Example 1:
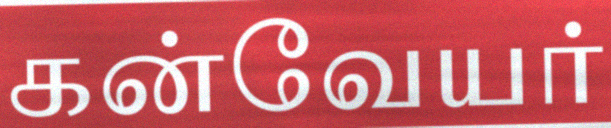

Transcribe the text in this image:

கன்வேயர்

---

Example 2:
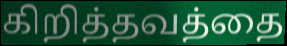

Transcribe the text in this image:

கிறித்தவத்தை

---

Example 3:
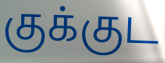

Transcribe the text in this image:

குக்குட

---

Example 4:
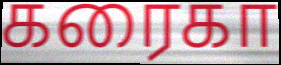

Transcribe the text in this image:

கரைகா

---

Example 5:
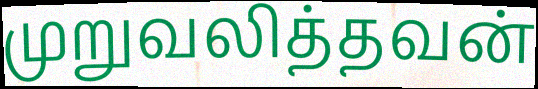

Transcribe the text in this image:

முறுவலித்தவன்